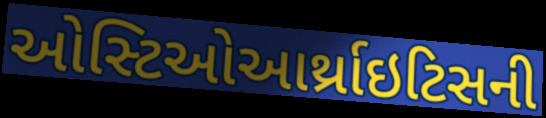
ઓસ્ટિઓઆર્થ્રાઇટિસની